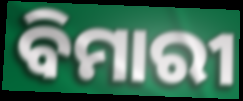
ବିମାରୀ